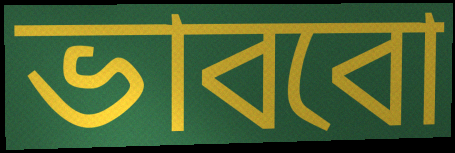
ভাববো